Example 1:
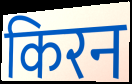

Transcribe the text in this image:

किरन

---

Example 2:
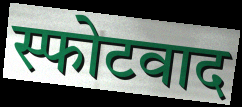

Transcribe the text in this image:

स्फोटवाद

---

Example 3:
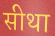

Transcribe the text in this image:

सीथा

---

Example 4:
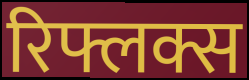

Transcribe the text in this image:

रिफ्लक्स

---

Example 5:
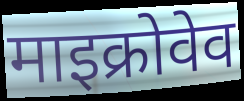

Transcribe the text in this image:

माइक्रोवेव